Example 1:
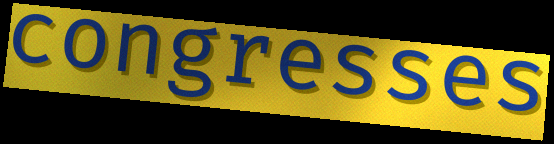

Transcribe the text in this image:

congresses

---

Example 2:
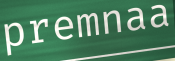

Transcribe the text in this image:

premnaa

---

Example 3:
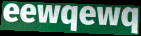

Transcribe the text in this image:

eewqewq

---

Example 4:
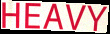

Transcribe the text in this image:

HEAVY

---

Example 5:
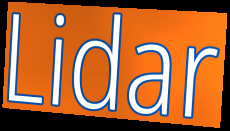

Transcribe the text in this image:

Lidar